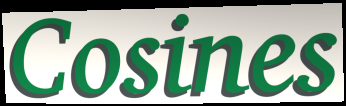
Cosines